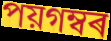
পয়গম্বৰ